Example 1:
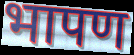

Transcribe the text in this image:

भापण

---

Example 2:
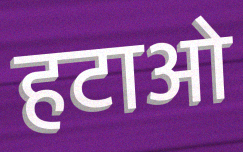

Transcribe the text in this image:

हटाओ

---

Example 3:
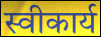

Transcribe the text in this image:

स्‍वीकार्य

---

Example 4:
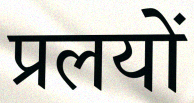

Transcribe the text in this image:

प्रलयों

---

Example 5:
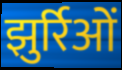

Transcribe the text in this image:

झुर्रिओं